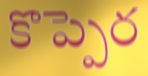
కొప్పెర